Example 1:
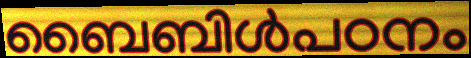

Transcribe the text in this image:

ബൈബിൾപഠനം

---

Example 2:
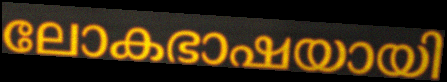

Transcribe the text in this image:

ലോകഭാഷയായി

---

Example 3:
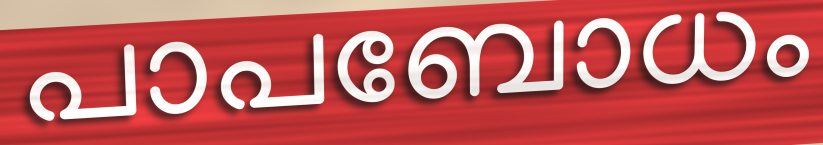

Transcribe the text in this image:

പാപബോധം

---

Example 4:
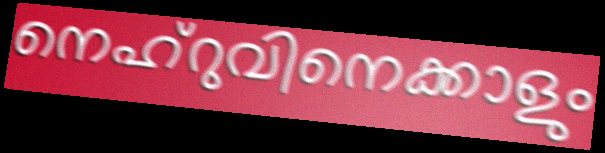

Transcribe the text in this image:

നെഹ്റുവിനെക്കാളും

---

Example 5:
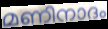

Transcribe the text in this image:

മണിനാദം